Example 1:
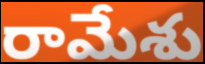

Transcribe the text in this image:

రామేశు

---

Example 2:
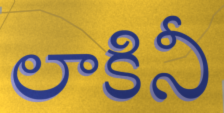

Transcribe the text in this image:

లాకినీ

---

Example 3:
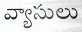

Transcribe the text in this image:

వ్యాసులు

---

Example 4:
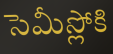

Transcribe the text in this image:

సెమీస్లోకి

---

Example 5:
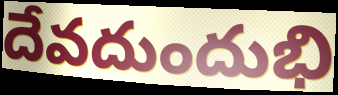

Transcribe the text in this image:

దేవదుందుభి